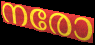
നരോ